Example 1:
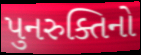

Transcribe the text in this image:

પુનરુક્તિનો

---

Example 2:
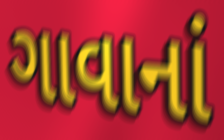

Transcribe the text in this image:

ગાવાનાં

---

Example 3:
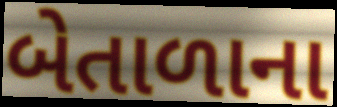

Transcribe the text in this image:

બેતાળાના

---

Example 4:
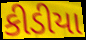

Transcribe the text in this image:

કીડીયા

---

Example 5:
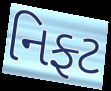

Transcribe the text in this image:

નિફ્ટ